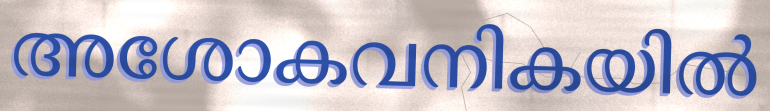
അശോകവനികയിൽ